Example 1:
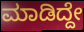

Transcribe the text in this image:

ಮಾಡಿದ್ದೇ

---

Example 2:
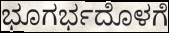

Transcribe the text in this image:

ಭೂಗರ್ಭದೊಳಗೆ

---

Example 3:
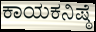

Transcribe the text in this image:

ಕಾಯಕನಿಷ್ಠೆ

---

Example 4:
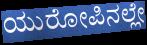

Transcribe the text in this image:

ಯುರೋಪಿನಲ್ಲೇ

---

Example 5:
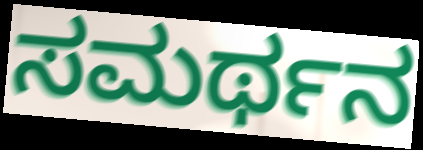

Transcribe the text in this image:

ಸಮರ್ಥನ